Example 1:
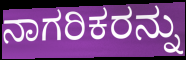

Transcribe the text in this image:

ನಾಗರಿಕರನ್ನು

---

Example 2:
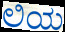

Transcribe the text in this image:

ಲಿಯ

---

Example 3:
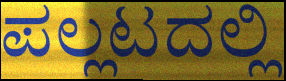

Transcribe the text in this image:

ಪಲ್ಲಟದಲ್ಲಿ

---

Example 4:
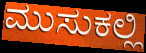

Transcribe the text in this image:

ಮುಸುಕಲ್ಲಿ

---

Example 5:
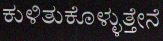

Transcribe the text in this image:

ಕುಳಿತುಕೊಳ್ಳುತ್ತೇನೆ